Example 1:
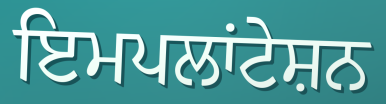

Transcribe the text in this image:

ਇਮਪਲਾਂਟੇਸ਼ਨ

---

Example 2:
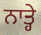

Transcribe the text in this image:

ਨਾਤ੍ਹੇ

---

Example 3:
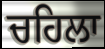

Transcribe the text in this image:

ਚਹਿਲਾ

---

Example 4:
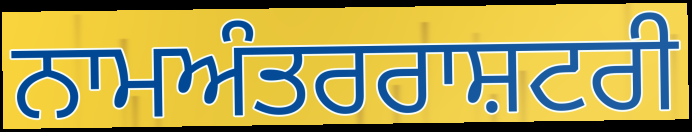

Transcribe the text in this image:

ਨਾਮਅੰਤਰਰਾਸ਼ਟਰੀ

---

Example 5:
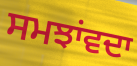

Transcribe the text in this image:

ਸਮਝਾਂਵਦਾ